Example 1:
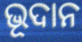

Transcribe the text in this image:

ଭୂଦାନ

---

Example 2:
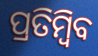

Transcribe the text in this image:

ପ୍ରତିମ୍ବିବ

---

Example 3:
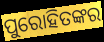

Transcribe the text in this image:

ପୁରୋହିତଙ୍କର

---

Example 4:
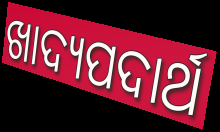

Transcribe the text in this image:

ଖାଦ୍ୟପଦାର୍ଥ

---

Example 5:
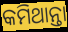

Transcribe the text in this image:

କମିଥାନ୍ତା